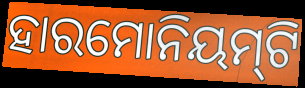
ହାରମୋନିୟମ୍‍ଟି